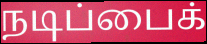
நடிப்பைக்